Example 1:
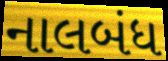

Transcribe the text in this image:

નાલબંધ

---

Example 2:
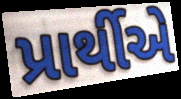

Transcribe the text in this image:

પ્રાર્થીએ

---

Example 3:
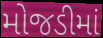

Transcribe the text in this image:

મોજડીમાં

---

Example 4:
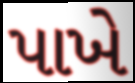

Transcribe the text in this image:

પાખે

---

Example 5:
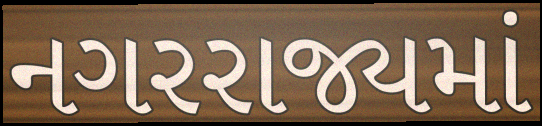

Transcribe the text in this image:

નગરરાજ્યમાં